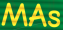
MAs